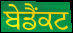
ਬੇਡੈਂਕਟ